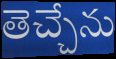
తెచ్చేను